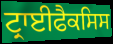
ਟ੍ਰਾਈਫੈਕਸਿਸ